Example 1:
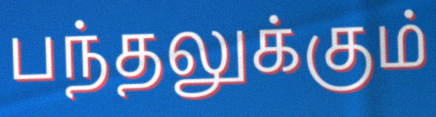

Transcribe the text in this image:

பந்தலுக்கும்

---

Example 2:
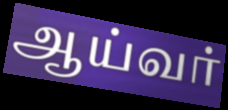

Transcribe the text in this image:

ஆய்வர்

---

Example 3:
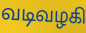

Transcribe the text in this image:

வடிவழகி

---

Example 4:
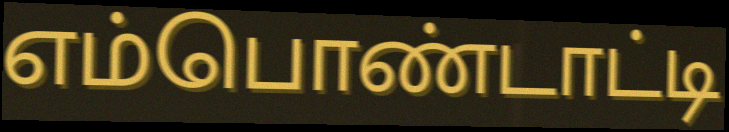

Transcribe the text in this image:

எம்பொண்டாட்டி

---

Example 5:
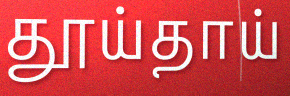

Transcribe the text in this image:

தூய்தாய்